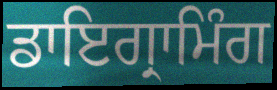
ਡਾਇਗ੍ਰਾਮਿੰਗ